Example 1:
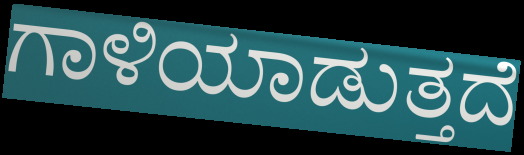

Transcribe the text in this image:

ಗಾಳಿಯಾಡುತ್ತದೆ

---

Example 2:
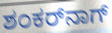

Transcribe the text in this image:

ಶಂಕರ್‌ನಾಗ್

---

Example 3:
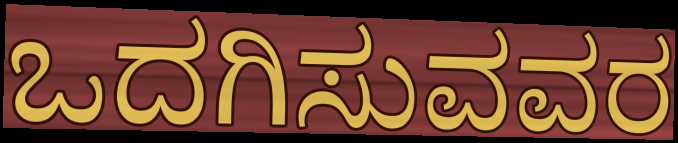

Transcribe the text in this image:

ಒದಗಿಸುವವರ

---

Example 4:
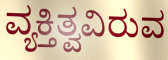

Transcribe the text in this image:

ವ್ಯಕ್ತಿತ್ವವಿರುವ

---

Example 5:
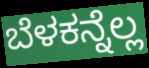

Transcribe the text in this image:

ಬೆಳಕನ್ನೆಲ್ಲ